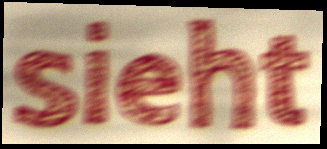
sieht